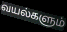
வயல்களும்